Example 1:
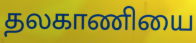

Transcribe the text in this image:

தலகாணியை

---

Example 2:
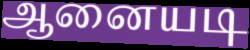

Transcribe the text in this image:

ஆனையடி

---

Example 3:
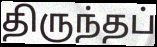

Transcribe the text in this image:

திருந்தப்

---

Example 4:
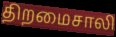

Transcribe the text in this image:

திறமைசாலி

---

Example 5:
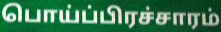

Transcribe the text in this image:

பொய்ப்பிரச்சாரம்